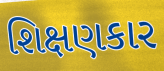
શિક્ષણકાર